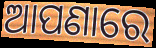
ଆପଣାରେ